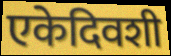
एकेदिवशी